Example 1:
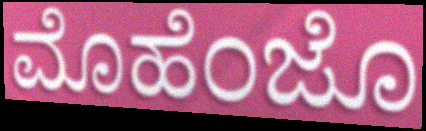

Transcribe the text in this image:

ಮೊಹೆಂಜೊ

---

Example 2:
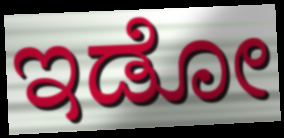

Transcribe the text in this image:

ಇಡೋ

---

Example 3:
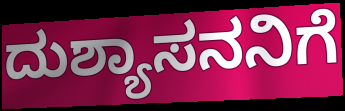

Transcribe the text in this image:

ದುಶ್ಯಾಸನನಿಗೆ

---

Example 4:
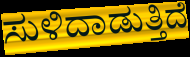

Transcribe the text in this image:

ಸುಳಿದಾಡುತ್ತಿದೆ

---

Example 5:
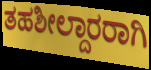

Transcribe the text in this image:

ತಹಶೀಲ್ದಾರರಾಗಿ